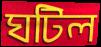
ঘটিল